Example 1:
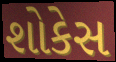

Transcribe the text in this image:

શોકેસ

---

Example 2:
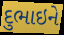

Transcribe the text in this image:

દુભાઇને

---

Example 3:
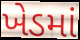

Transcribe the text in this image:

ખેડમાં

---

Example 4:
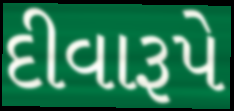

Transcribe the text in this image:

દીવારૂપે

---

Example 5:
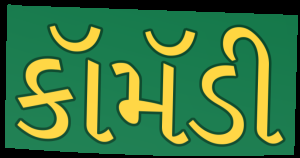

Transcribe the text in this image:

કૉમૅડી